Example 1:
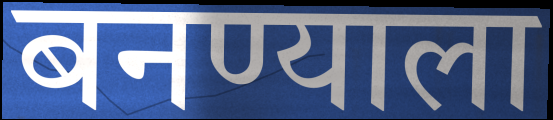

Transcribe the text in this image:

बनण्याला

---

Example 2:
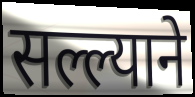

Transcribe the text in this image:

सल्ल्याने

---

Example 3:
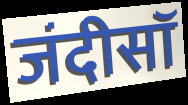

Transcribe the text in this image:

जंदीसॉ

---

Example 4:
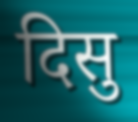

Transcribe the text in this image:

दिसु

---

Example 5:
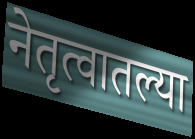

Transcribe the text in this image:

नेतृत्वातल्या